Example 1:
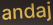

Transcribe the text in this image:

andaj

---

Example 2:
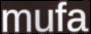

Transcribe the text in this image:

mufa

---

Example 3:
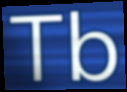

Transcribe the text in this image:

Tb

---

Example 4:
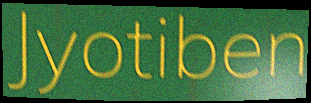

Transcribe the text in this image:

Jyotiben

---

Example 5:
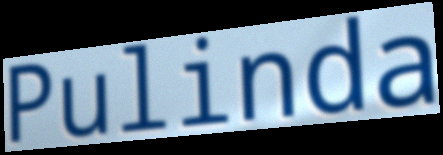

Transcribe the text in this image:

Pulinda